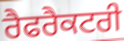
ਰੈਫਰੈਕਟਰੀ